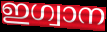
ഇഗ്വാന